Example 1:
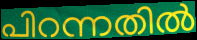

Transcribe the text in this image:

പിറന്നതിൽ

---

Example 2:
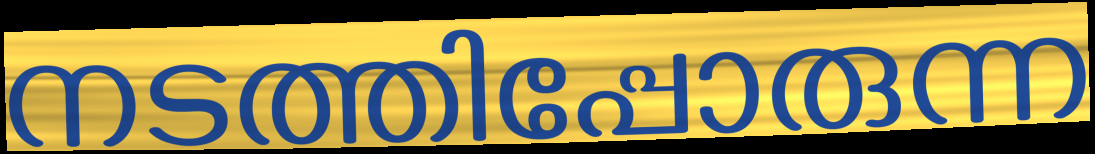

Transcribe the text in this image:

നടത്തിപ്പോരുന്ന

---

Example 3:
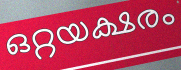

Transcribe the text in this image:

ഒറ്റയക്ഷരം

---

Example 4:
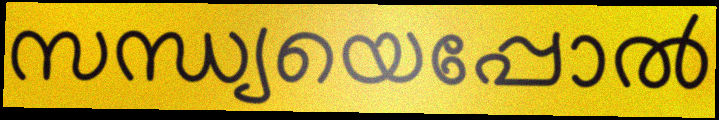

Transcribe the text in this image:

സന്ധ്യയെപ്പോൽ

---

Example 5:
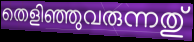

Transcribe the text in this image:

തെളിഞ്ഞുവരുന്നതു്